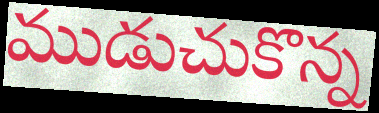
ముడుచుకొన్న